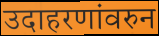
उदाहरणांवरुन